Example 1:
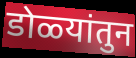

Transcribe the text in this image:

डोळ्यांतुन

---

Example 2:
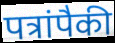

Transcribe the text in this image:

पत्रांपैकी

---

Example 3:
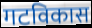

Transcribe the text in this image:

गटविकास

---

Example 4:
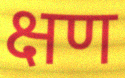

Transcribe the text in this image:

क्षण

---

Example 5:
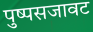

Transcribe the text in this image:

पुष्पसजावट